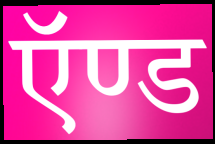
ऍण्ड